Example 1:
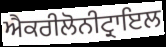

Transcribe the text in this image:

ਐਕਰੀਲੋਨੀਟ੍ਰਾਇਲ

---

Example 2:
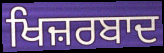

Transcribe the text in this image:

ਖਿਜ਼ਰਬਾਦ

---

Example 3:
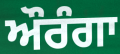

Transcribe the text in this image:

ਔਰੰਗਾ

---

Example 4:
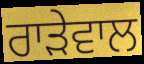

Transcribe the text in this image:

ਰਾੜੇਵਾਲ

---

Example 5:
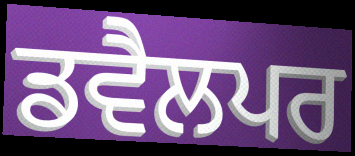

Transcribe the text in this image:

ਡਵੈਲਪਰ